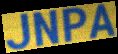
JNPA